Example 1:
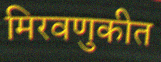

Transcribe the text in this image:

मिरवणुकीत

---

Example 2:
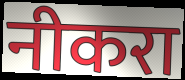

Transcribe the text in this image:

नीकरा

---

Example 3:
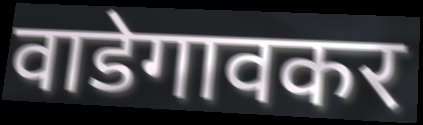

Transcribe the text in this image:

वाडेगावकर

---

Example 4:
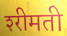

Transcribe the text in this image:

श्रीमती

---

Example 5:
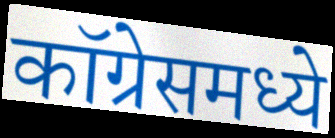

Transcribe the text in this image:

कॉग्रेसमध्ये